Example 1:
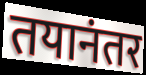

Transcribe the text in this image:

तयानंतर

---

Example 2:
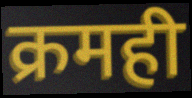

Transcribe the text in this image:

क्रमही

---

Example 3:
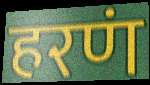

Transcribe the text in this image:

हरणं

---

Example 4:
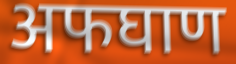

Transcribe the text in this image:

अफघाण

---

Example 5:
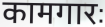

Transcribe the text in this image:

कामगारः